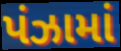
પંઝામાં